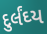
દુર્લંઘ્ય